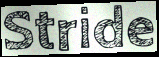
Stride